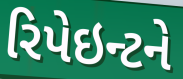
રિપેઇન્ટને